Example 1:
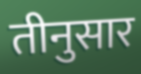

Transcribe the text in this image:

तीनुसार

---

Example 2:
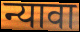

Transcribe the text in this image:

न्यावा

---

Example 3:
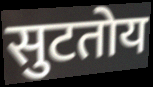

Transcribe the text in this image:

सुटतोय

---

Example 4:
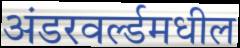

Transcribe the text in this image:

अंडरवर्ल्डमधील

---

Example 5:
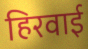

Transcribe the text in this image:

हिरवाई